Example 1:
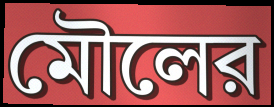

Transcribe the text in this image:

মৌলের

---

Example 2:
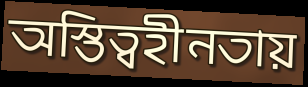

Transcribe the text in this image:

অস্তিত্বহীনতায়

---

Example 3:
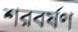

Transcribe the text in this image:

শরবর্ষণ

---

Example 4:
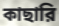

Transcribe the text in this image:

কাছারি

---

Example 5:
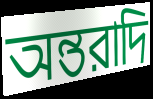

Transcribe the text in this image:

অন্তরাদি